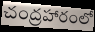
చంద్రహారంలో